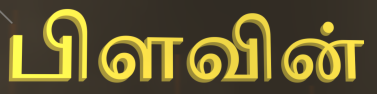
பிளவின்